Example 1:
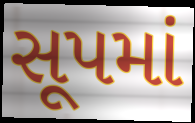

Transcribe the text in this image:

સૂપમાં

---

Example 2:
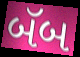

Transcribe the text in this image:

બૅબ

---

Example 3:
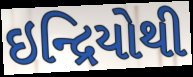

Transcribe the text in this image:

ઇન્દ્રિયોથી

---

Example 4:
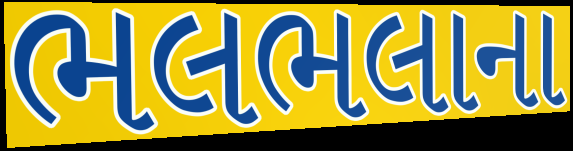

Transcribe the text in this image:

ભલભલાના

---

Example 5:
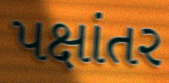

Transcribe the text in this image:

પક્ષાંતર